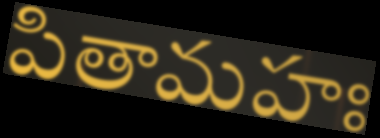
పితామహః